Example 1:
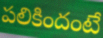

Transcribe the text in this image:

పలికిందంటే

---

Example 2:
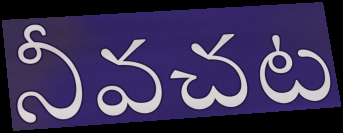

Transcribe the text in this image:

నీవచట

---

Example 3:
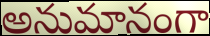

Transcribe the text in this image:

అనుమానంగా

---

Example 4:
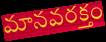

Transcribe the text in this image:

మానవరక్తం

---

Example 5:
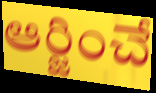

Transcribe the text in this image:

ఆర్జించే